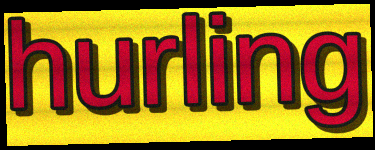
hurling